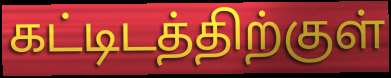
கட்டிடத்திற்குள்